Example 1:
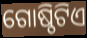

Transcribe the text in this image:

ଗୋଷ୍ଠିଟିଏ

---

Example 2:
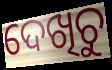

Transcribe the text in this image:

ଦେଖିଚୁ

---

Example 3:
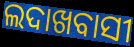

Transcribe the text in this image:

ଲଦାଖବାସୀ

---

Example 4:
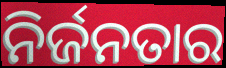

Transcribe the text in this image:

ନିର୍ଜନତାର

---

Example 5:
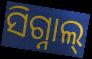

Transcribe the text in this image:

ସିଗ୍ନାଲ୍